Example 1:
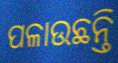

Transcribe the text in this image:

ପଳାଉଛନ୍ତି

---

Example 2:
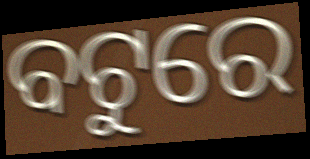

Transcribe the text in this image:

ବଟୁରେ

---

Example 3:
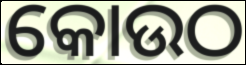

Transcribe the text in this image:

କୋଉଠ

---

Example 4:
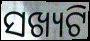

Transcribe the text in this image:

ସଖ୍ୟଟି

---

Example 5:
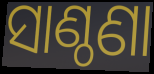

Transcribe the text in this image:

ସାଣ୍ଠଣା